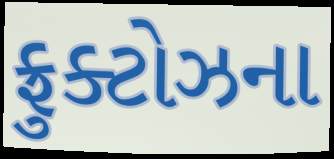
ફ્રુક્ટોઝના